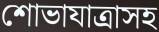
শোভাযাত্রাসহ